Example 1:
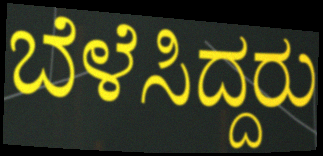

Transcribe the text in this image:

ಬೆಳೆಸಿದ್ದರು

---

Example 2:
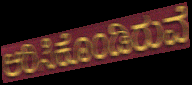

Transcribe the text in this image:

ಆರಿಸಿಕೊಂಡಿರುವೆ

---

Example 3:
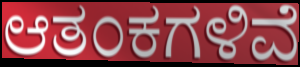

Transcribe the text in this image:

ಆತಂಕಗಳಿವೆ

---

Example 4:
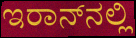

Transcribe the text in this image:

ಇರಾನ್‌ನಲ್ಲಿ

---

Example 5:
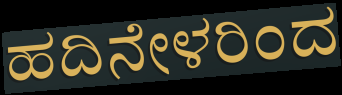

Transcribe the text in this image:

ಹದಿನೇಳರಿಂದ